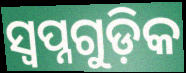
ସ୍ଵପ୍ନଗୁଡ଼ିକ